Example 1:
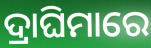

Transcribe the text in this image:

ଦ୍ରାଘିମାରେ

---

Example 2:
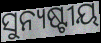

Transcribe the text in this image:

ସୁନ୍ୟଷ୍ଟୀୟ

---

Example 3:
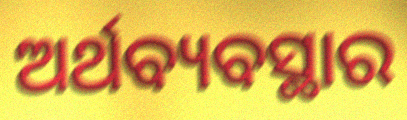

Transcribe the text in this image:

ଅର୍ଥବ୍ୟବସ୍ଥାର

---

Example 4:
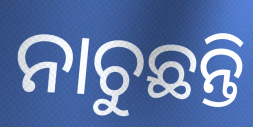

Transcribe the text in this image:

ନାଚୁଛନ୍ତି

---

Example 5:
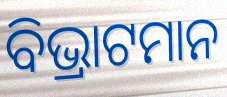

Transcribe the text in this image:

ବିଭ୍ରାଟମାନ